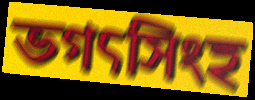
ভগৎসিংহ